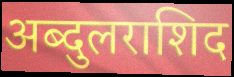
अब्दुलराशिद